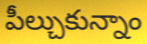
పీల్చుకున్నాం